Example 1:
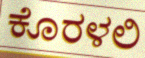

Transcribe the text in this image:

ಕೊರಳಲಿ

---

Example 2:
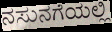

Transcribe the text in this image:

ನಸುನಗೆಯಲ್ಲಿ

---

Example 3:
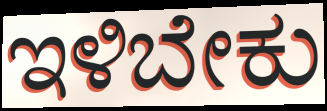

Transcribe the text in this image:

ಇಳಿಬೇಕು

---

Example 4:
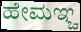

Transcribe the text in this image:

ಹೇಮಞ್ಚ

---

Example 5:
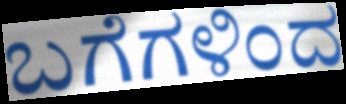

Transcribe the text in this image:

ಬಗೆಗಳಿಂದ